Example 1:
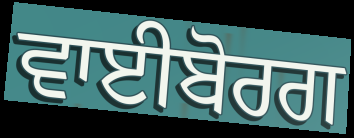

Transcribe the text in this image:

ਵਾਈਬੋਰਗ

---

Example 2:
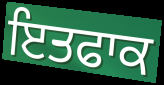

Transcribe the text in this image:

ਇਤਫਾਕ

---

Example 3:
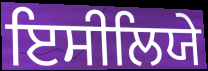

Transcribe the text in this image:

ਇਸੀਲਿਯੇ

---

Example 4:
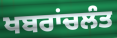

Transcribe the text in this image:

ਖਬਰਾਂਚਲੰਤ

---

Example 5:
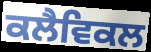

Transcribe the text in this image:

ਕਲੈਵਿਕਲ